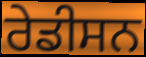
ਰੇਡੀਸਨ